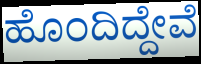
ಹೊಂದಿದ್ದೇವೆ